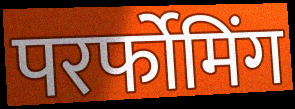
परर्फोमिंग